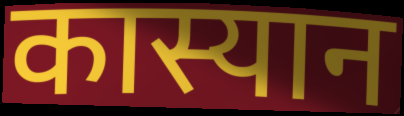
कास्यान